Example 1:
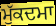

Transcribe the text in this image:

ਮੁੱਕਦਮਾ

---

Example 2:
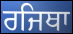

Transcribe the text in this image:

ਰਜਿਥਾ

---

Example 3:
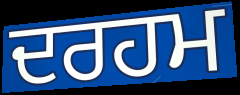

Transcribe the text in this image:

ਦਰਹਮ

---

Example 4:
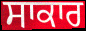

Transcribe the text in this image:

ਸਾਕਾਰ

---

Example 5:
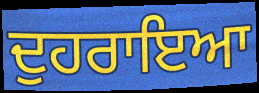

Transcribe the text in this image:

ਦੁਹਰਾਇਆ